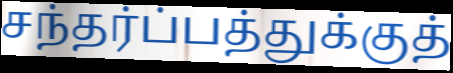
சந்தர்ப்பத்துக்குத்